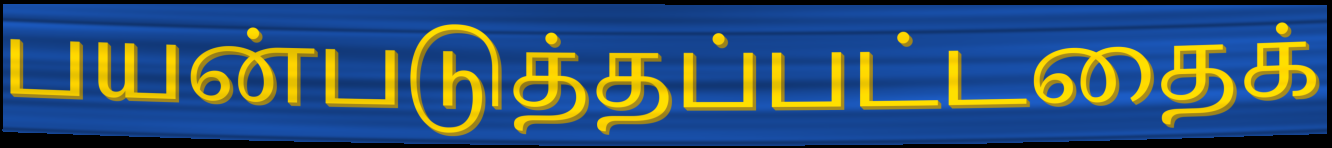
பயன்படுத்தப்பட்டதைக்